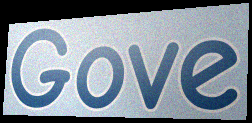
Gove